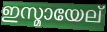
ഇസ്മായേല്